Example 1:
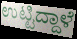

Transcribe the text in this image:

ಉಟ್ಟಿದ್ದಾಳೆ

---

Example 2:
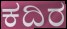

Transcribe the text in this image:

ಕದಿರ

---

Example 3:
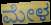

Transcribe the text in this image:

ಮೇಳ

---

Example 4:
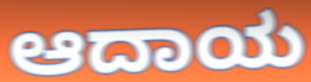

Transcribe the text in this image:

ಆದಾಯ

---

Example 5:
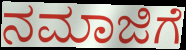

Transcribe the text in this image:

ನಮಾಜಿಗೆ